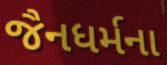
જૈનધર્મના